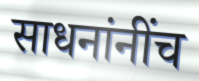
साधनांनींच